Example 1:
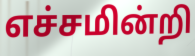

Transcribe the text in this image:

எச்சமின்றி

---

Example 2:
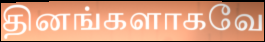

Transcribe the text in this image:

தினங்களாகவே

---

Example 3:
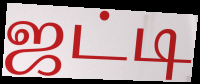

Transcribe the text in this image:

ஜட்டி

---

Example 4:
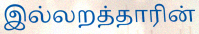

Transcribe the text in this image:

இல்லறத்தாரின்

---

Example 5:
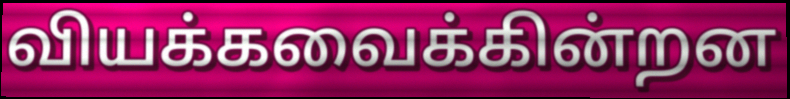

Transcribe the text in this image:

வியக்கவைக்கின்றன